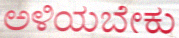
ಅಳಿಯಬೇಕು